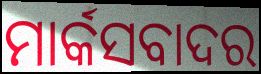
ମାର୍କସବାଦର